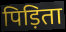
पिड़िता